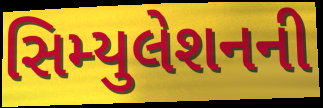
સિમ્યુલેશનની